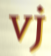
vj